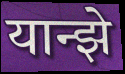
यान्झे